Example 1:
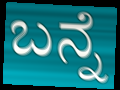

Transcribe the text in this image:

ಬನ್ನೆ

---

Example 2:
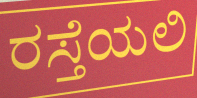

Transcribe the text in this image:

ರಸ್ತೆಯಲಿ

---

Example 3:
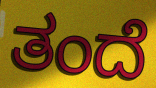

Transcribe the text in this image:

ತಂದೆ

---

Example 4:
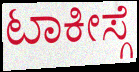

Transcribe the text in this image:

ಟಾಕೀಸ್ಗೆ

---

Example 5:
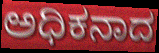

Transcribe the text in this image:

ಅಧಿಕನಾದ